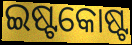
ଇଷ୍ଟକୋଷ୍ଟ